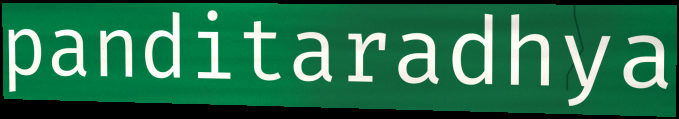
panditaradhya